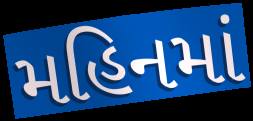
મહિનમાં